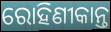
ରୋହିଣୀକାନ୍ତ